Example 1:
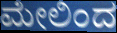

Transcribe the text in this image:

ಮೇಲಿಂದ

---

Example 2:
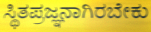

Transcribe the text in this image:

ಸ್ಥಿತಪ್ರಜ್ಞನಾಗಿರಬೇಕು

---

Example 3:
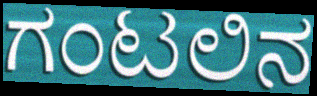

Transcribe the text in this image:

ಗಂಟಲಿನ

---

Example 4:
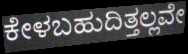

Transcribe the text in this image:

ಕೇಳಬಹುದಿತ್ತಲ್ಲವೇ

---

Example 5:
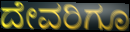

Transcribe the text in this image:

ದೇವರಿಗೂ